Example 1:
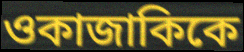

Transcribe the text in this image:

ওকাজাকিকে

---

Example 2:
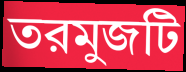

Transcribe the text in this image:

তরমুজটি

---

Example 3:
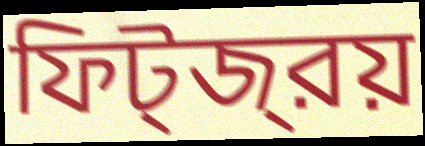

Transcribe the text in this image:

ফিট্‌জ্‌রয়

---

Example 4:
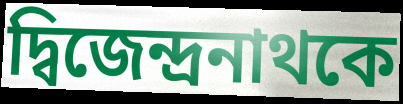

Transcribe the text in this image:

দ্বিজেন্দ্রনাথকে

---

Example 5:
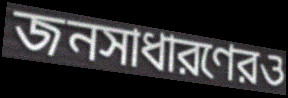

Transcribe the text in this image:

জনসাধারণেরও